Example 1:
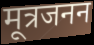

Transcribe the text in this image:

मूत्रजनन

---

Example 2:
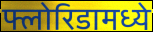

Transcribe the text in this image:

फ्लोरिडामध्ये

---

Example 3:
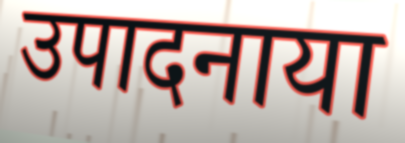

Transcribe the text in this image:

उपादनाया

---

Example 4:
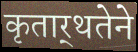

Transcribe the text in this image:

कृतार्थतेने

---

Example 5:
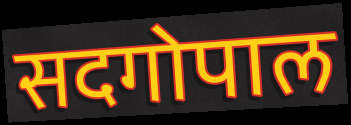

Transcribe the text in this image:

सदगोपाल